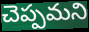
చెప్పమని